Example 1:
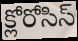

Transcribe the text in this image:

క్లోరోసిస్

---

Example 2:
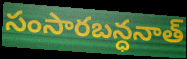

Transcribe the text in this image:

సంసారబన్ధనాత్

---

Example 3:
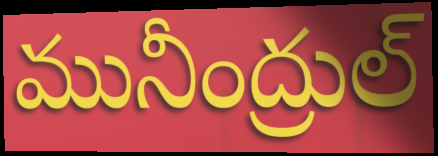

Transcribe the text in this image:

మునీంద్రుల్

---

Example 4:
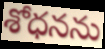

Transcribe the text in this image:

శోధనను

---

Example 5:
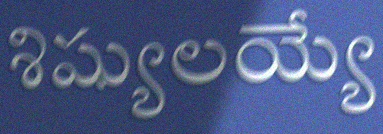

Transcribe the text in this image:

శిష్యులయ్యే